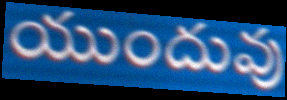
యుందువు